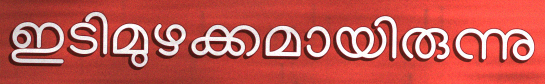
ഇടിമുഴക്കമായിരുന്നു